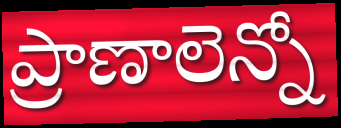
ప్రాణాలెన్నో